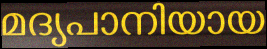
മദ്യപാനിയായ